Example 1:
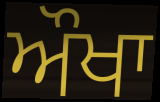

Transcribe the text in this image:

ਔਖਾ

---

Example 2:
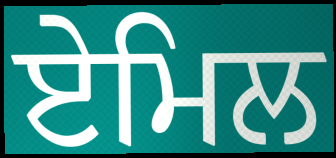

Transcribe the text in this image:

ਏਮਿਲ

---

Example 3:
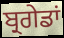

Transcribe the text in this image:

ਬ੍ਰਗੇਡਾਂ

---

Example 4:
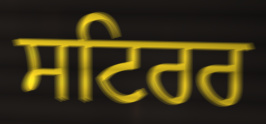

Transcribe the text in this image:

ਸਟਿਰਰ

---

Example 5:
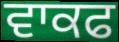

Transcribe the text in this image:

ਵਾਕਫ